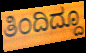
ತಿಂದಿದ್ದೂ